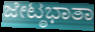
ಜೇಟ್ಠಭಾತಾ